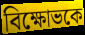
বিক্ষোভকে